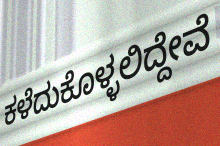
ಕಳೆದುಕೊಳ್ಳಲಿದ್ದೇವೆ